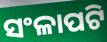
ସଂଳାପଟି